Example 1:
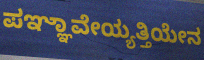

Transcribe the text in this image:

ಪಞ್ಞಾವೇಯ್ಯತ್ತಿಯೇನ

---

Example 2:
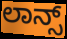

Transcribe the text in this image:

ಲಾನ್ಸ್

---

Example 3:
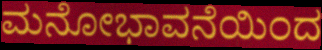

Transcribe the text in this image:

ಮನೋಭಾವನೆಯಿಂದ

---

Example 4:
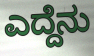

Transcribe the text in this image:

ಎದ್ದೆನು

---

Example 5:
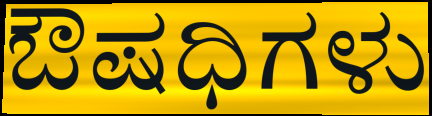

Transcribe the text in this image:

ಔಷಧಿಗಳು